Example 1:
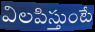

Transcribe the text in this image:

విలపిస్తుంటే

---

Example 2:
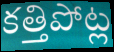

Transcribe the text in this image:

కత్తిపోట్ల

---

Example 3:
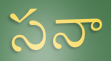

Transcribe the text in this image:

సనా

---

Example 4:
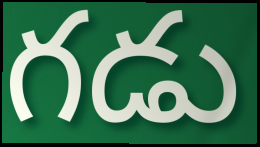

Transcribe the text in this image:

గడు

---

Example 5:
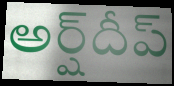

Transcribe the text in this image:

అర్ష్‌దీప్